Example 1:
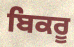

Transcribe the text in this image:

ਬਿਕਰੂ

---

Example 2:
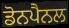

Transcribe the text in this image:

ਡੋਨਪੈਨਲ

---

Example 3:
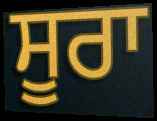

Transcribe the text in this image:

ਸੂਰਾ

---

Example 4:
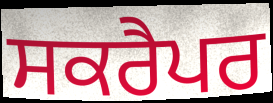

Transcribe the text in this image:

ਸਕਰੈਪਰ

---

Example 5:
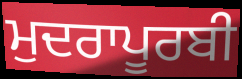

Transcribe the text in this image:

ਮੁਦਰਾਪੂਰਬੀ